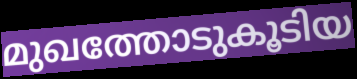
മുഖത്തോടുകൂടിയ